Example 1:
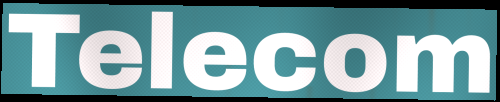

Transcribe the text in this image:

Telecom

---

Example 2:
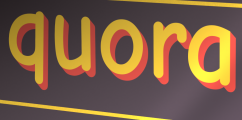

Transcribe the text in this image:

quora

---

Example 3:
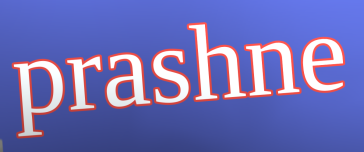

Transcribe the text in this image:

prashne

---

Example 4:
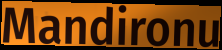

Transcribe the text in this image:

Mandironu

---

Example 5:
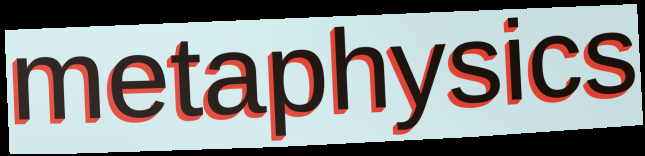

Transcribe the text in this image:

metaphysics